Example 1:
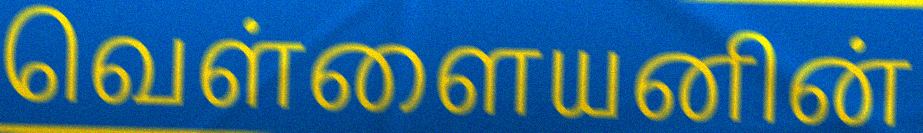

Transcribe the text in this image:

வெள்ளையனின்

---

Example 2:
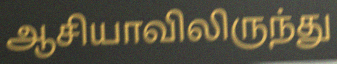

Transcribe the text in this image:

ஆசியாவிலிருந்து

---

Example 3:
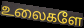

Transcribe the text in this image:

உலைகளே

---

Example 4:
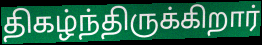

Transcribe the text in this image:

திகழ்ந்திருக்கிறார்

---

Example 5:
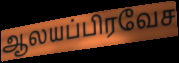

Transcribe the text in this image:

ஆலயப்பிரவேச